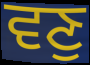
ਵਣੁ